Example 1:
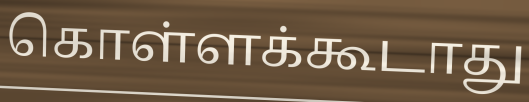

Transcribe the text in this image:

கொள்ளக்கூடாது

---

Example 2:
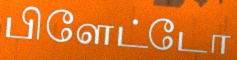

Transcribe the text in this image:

பிளேட்டோ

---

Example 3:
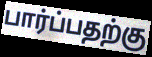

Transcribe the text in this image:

பார்ப்பதற்கு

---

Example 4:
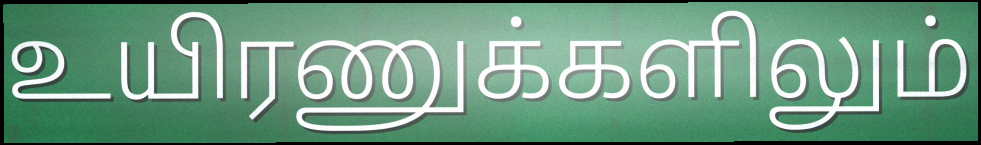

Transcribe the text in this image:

உயிரணுக்களிலும்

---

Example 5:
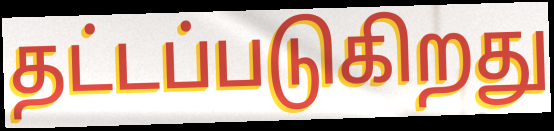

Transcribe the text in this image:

தட்டப்படுகிறது